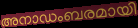
അനാഡംബരമായി